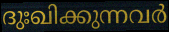
ദുഃഖിക്കുന്നവർ